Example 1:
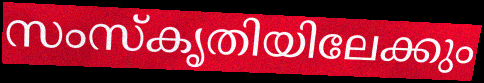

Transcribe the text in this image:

സംസ്കൃതിയിലേക്കും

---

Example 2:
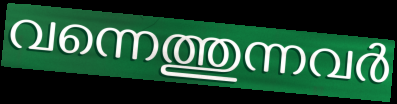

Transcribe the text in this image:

വന്നെത്തുന്നവർ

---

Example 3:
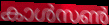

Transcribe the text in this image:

കാൾസൺ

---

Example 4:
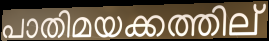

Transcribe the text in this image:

പാതിമയക്കത്തില്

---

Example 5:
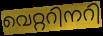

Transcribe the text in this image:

വെറ്ററിനറി